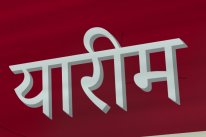
यारीम